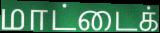
மாட்டைக்